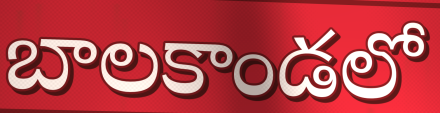
బాలకాండలో